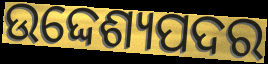
ଉଦ୍ଦେଶ୍ୟପଦର